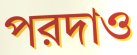
পরদাও